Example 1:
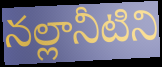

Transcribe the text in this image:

నల్లానీటిని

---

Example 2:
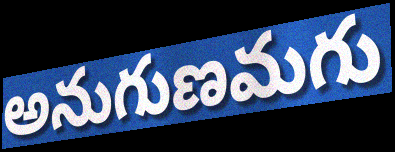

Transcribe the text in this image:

అనుగుణమగు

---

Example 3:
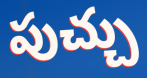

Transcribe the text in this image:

పుచ్చు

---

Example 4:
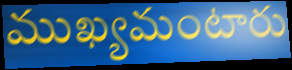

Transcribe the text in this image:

ముఖ్యమంటారు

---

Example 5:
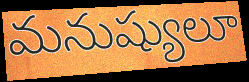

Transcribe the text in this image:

మనుష్యులూ